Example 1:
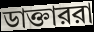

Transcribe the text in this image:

ডাক্তাররা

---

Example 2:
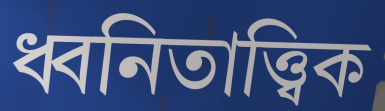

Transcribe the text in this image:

ধ্বনিতাত্ত্বিক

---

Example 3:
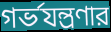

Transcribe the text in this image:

গর্ভযন্ত্রণার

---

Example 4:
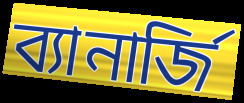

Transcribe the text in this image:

ব্যানার্জি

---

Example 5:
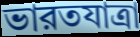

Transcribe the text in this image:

ভারতযাত্রা